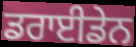
ਡਰਾਈਡੇਨ